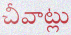
చీవాట్లు